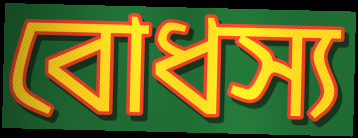
বোধস্য